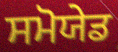
ਸਮੋਯੇਡ